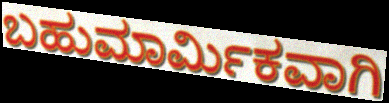
ಬಹುಮಾರ್ಮಿಕವಾಗಿ